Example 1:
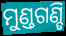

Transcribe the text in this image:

ମୁଣ୍ଡଗଣ୍ଡି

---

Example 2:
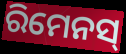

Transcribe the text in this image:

ରିମେନସ୍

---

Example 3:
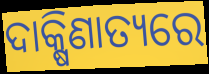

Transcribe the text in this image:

ଦାକ୍ଷିଣାତ୍ୟରେ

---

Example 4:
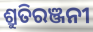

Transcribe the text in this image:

ଶ୍ରୁତିରଞ୍ଜନୀ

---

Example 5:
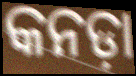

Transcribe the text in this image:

କନଡ଼ା